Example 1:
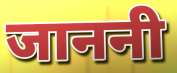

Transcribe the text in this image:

जाननी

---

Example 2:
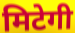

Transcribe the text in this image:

मिटेगी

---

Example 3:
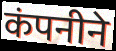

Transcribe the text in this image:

कंपनीने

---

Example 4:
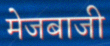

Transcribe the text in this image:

मेजबाजी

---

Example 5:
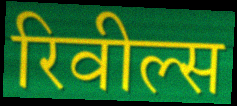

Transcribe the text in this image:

रिवील्स